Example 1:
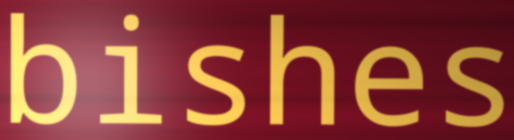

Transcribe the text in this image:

bishes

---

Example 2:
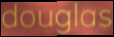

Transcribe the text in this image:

douglas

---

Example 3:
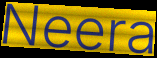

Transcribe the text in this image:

Neera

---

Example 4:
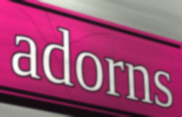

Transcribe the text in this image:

adorns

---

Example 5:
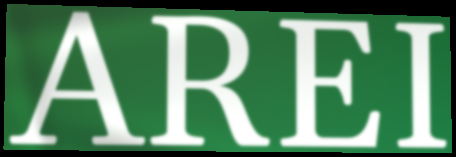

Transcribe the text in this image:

AREI